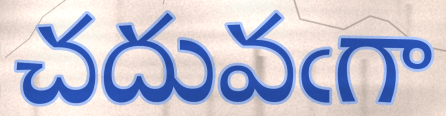
చదువఁగా